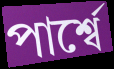
পার্শ্বে